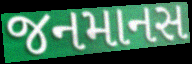
જનમાનસ